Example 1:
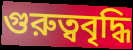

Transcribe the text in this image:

গুরুত্ববৃদ্ধি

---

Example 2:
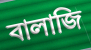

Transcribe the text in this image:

বালাজি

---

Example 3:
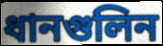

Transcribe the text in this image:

ধানগুলিন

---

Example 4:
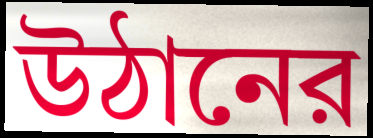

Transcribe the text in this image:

উঠানের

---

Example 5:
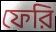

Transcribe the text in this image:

ফেরি